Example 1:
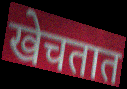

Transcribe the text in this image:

खेचतात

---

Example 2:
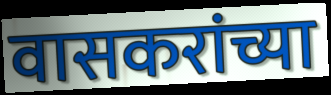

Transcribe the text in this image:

वासकरांच्या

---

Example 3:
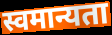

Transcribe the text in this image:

स्वमान्यता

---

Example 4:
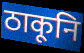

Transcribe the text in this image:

ठाकूनि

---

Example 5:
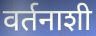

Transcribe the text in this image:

वर्तनाशी